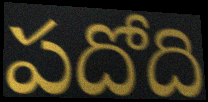
పదోది